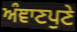
ਅੰਞਾਣਪੁਣੇ